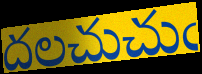
దలచుచుఁ